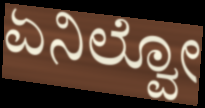
ಏನಿಲ್ವೋ